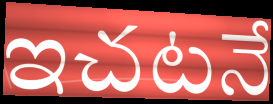
ఇచటనే